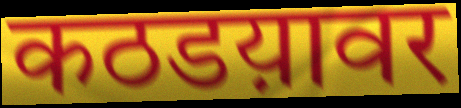
कठडय़ावर